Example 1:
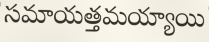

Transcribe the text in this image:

సమాయత్తమయ్యాయి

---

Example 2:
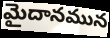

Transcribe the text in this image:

మైదానమున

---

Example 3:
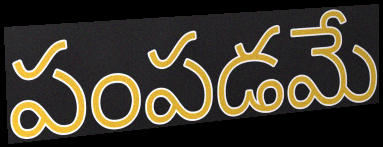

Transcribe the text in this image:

పంపడమే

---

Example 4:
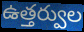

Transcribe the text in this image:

ఉత్తర్వుల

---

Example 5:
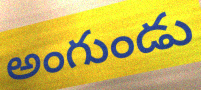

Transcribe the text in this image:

అంగుండు